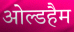
ओल्डहैम